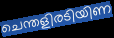
ചെന്തളിരടിയിണ